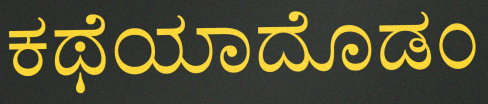
ಕಥೆಯಾದೊಡಂ